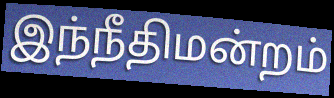
இந்நீதிமன்றம்